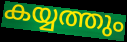
കയ്യത്തും